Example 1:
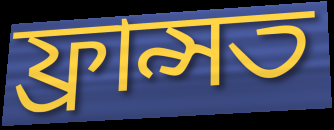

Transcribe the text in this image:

ফ্ৰান্সত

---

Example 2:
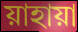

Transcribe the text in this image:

য়াহায়া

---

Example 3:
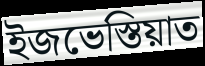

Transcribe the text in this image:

ইজভেস্তিয়াত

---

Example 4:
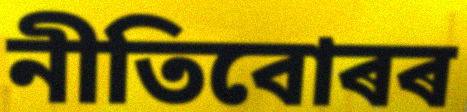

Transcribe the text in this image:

নীতিবোৰৰ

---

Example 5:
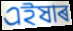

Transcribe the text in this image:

এইষাৰ